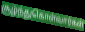
சூழ்ந்துகொள்வார்கள்